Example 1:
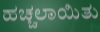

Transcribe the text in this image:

ಹಚ್ಚಲಾಯಿತು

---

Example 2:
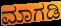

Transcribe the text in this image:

ಮಾಗಡಿ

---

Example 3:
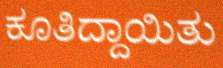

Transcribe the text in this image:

ಕೂತಿದ್ದಾಯಿತು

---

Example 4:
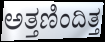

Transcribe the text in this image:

ಅತ್ತಣಿಂದಿತ್ತ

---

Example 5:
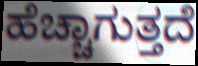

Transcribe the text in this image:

ಹೆಚ್ಚಾಗುತ್ತದೆ